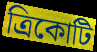
ত্রিকোটি